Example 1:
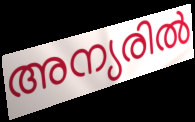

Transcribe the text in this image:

അന്യരിൽ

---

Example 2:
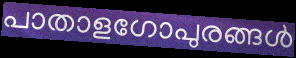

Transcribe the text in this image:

പാതാളഗോപുരങ്ങൾ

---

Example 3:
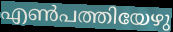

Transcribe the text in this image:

എൺപത്തിയേഴു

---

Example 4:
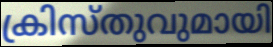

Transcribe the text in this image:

ക്രിസ്തുവുമായി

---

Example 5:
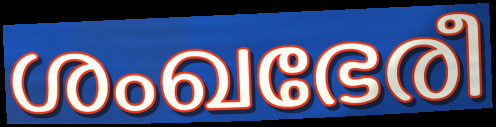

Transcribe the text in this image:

ശംഖഭേരീ